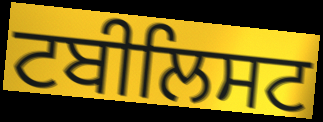
ਟਬੀਲਿਸਟ